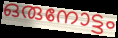
ഒരുനോട്ടം